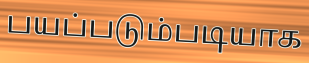
பயப்படும்படியாக